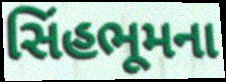
સિંહભૂમના